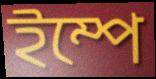
ইম্পে